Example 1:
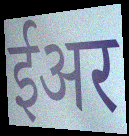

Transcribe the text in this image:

ईअर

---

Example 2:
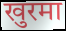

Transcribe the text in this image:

खुरमा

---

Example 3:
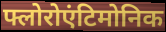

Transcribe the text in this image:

फ्लोरोएंटिमोनिक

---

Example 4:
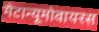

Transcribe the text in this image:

मेटान्यूमोवायरस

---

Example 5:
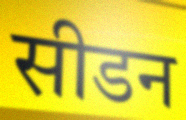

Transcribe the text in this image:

सीडन